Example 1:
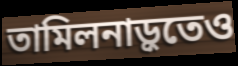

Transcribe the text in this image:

তামিলনাড়ুতেও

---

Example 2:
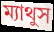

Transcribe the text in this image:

ম্যাথুস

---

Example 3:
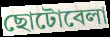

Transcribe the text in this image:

ছোটোবেলা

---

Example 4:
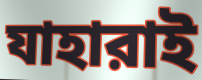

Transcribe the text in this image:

যাহারাই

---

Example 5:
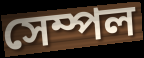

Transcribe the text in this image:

সেম্পল